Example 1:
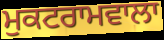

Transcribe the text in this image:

ਮੁਕਟਰਾਮਵਾਲਾ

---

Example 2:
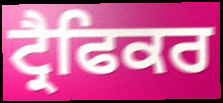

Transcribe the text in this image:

ਟ੍ਰੈਫਿਕਰ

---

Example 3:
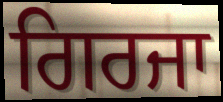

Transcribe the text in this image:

ਗਿਰਜਾ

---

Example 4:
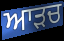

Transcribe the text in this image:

ਆੜਚ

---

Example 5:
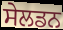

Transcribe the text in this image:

ਸੇਲਡਨ